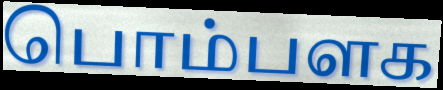
பொம்பளக